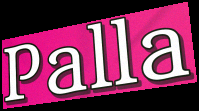
Palla